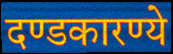
दण्डकारण्ये